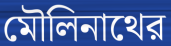
মৌলিনাথের